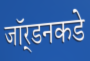
जॉर्डनकडे